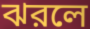
ঝরলে